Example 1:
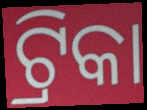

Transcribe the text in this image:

ଟ୍ରିକା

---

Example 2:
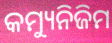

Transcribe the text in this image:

କମ୍ୟୁନିଜିମ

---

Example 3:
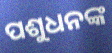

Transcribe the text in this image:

ପଶୁଧନଙ୍କ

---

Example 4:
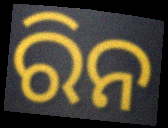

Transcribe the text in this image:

ରିନ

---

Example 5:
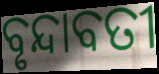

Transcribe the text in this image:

ବୃନ୍ଦାବତୀ